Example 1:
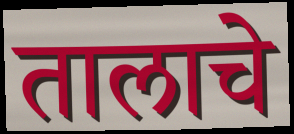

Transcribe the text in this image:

तालाचे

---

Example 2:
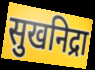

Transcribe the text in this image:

सुखनिद्रा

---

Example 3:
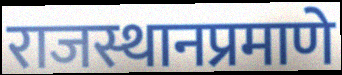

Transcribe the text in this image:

राजस्थानप्रमाणे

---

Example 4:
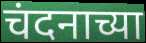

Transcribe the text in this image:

चंदनाच्या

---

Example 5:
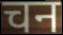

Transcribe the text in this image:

चन